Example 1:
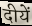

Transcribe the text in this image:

दीयें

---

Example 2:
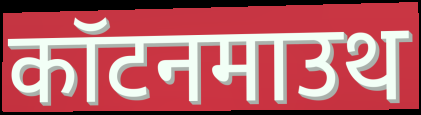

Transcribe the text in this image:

कॉटनमाउथ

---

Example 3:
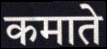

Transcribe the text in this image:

कमाते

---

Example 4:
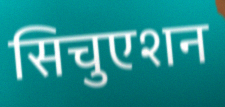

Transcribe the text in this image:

सिचुएशन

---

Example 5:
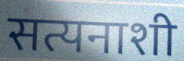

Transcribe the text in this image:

सत्यनाशी